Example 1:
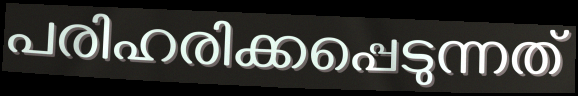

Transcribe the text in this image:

പരിഹരിക്കപ്പെടുന്നത്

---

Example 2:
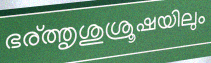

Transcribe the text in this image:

ഭര്ത്തൃശുശ്രൂഷയിലും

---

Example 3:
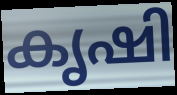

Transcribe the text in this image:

കൃഷി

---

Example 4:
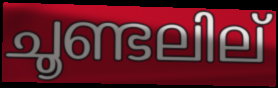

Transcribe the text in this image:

ചൂണ്ടലില്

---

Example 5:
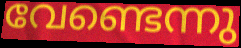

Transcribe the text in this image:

വേണ്ടെന്നു